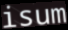
isum